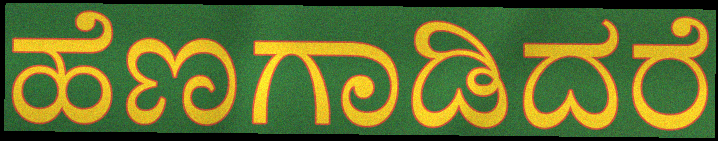
ಹೆಣಗಾಡಿದರೆ